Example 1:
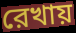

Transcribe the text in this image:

রেখায়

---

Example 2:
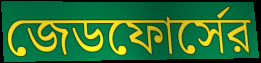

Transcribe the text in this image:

জেডফোর্সের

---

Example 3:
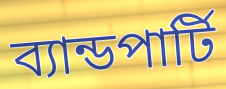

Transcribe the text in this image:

ব্যান্ডপার্টি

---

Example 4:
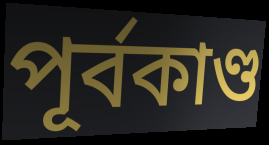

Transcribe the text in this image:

পূর্বকাণ্ড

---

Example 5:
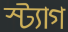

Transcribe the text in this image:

স্ট্যাগ